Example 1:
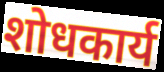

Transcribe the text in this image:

शोधकार्य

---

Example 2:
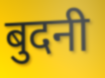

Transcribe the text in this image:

बुदनी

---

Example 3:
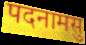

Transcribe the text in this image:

पदनामसु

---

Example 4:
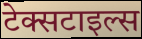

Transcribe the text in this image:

टेक्सटाइल्स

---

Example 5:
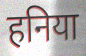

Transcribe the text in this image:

हनिया